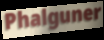
Phalguner